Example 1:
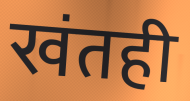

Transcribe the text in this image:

खंतही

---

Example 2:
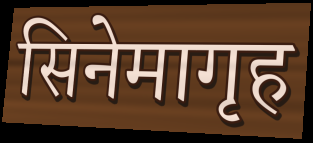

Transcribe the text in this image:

सिनेमागृह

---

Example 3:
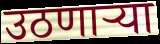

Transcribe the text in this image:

उठणाऱ्या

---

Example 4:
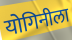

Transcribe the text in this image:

योगिनीला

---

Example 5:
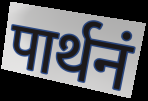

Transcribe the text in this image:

पार्थनं